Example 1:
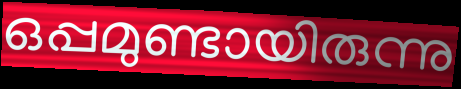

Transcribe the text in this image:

ഒപ്പമുണ്ടായിരുന്നു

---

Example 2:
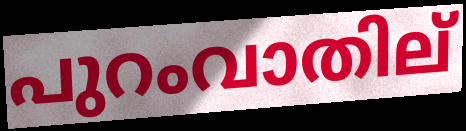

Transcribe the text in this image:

പുറംവാതില്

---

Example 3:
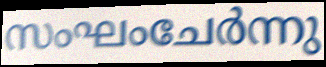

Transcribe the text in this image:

സംഘംചേർന്നു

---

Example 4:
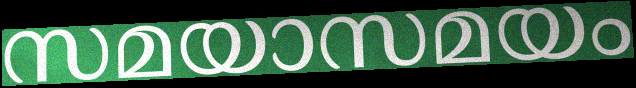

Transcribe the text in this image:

സമയാസമയം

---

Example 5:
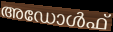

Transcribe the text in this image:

അഡോൾഫ്